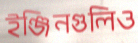
ইঞ্জিনগুলিও